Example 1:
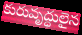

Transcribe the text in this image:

కురువృద్ధులైన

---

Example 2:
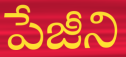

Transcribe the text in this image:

పేజీని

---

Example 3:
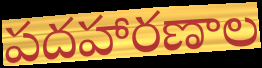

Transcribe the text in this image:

పదహారణాల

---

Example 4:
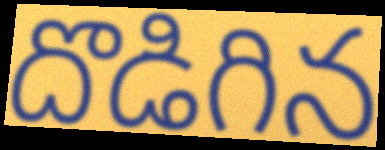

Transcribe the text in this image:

దొడిగిన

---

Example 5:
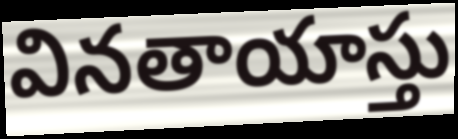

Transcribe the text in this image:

వినతాయాస్తు